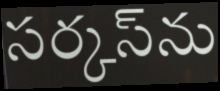
సర్కస్‌ను